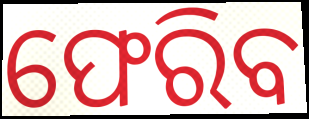
ଫେରିବ